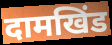
दामखिंड